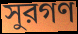
সুরগণ